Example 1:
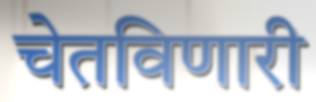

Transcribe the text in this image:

चेतविणारी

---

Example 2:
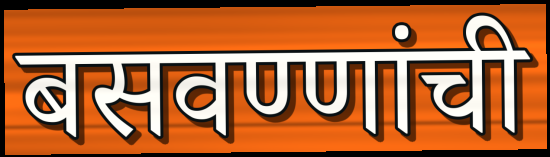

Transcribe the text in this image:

बसवण्णांची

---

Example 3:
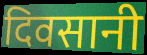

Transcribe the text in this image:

दिवसानी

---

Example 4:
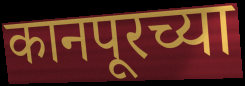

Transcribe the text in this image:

कानपूरच्या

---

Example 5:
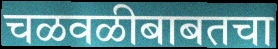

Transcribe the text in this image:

चळवळीबाबतचा